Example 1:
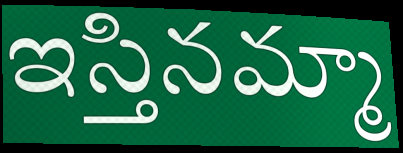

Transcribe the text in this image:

ఇస్తినమ్మా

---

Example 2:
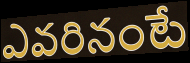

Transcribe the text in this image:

ఎవరినంటే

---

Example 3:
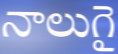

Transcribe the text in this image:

నాలుగై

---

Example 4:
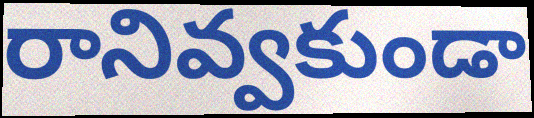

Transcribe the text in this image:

రానివ్వకుండా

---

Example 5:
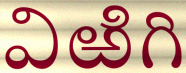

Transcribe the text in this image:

విఱిగి